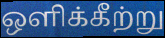
ஒளிக்கீற்று